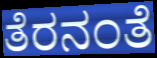
ತೆರನಂತೆ